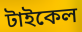
টাইকেল